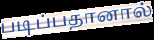
படிப்பதானால்